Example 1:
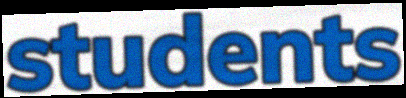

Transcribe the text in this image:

students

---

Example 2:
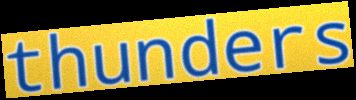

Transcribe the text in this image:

thunders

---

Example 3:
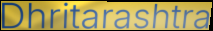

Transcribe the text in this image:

Dhritarashtra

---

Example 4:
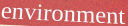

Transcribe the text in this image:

environment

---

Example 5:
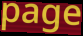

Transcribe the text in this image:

page